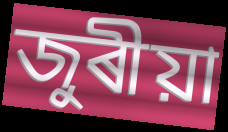
জুৰীয়া